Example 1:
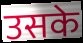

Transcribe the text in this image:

उसके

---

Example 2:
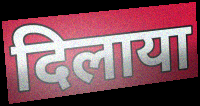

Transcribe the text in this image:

दिलाया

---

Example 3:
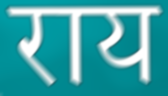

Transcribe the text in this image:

राय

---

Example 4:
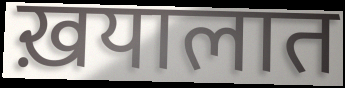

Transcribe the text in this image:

ख़यालात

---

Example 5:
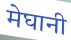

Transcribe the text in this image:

मेघानी